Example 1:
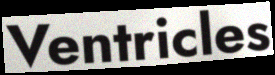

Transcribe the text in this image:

Ventricles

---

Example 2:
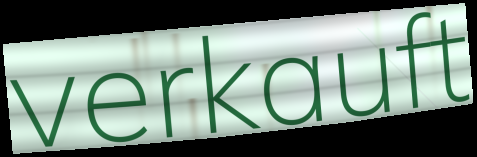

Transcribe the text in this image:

verkauft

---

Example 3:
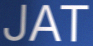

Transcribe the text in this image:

JAT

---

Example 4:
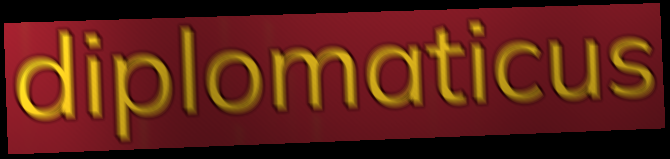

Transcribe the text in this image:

diplomaticus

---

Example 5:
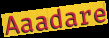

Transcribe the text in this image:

Aaadare